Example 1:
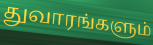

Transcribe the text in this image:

துவாரங்களும்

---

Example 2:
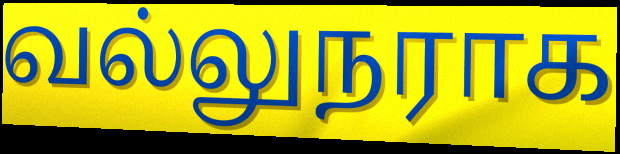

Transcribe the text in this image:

வல்லுநராக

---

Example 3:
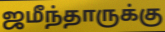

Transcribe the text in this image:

ஜமீந்தாருக்கு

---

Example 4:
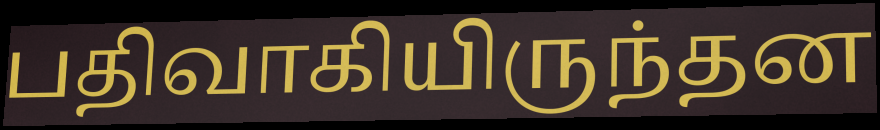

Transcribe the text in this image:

பதிவாகியிருந்தன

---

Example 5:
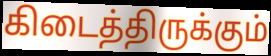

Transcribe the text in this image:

கிடைத்திருக்கும்